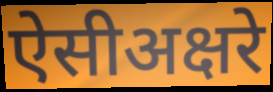
ऐसीअक्षरे